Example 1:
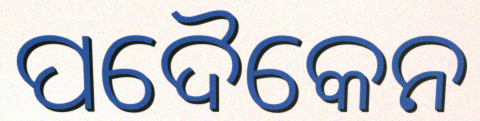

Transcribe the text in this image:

ପଦୈକେନ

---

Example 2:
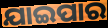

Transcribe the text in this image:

ଯାଇପାର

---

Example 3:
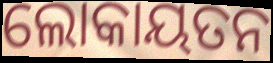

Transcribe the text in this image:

ଲୋକାୟତନ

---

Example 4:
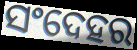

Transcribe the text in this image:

ସଂଦେହର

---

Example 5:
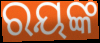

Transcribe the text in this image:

ରୟଙ୍କ